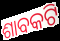
ଶାବକଟି